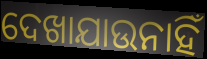
ଦେଖାଯାଉନାହିଁ